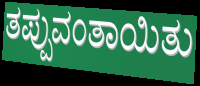
ತಪ್ಪುವಂತಾಯಿತು